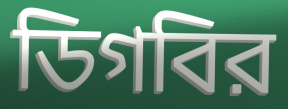
ডিগবির